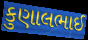
કુણાલભાઈ